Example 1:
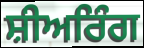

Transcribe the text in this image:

ਸ਼ੀਅਰਿੰਗ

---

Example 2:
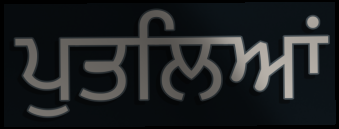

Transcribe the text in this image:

ਪੁਤਲਿਆਂ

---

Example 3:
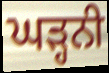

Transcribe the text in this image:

ਘੜ੍ਹਨੀ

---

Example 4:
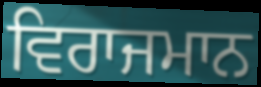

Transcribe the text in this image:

ਵਿਰਾਜਮਾਨ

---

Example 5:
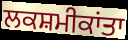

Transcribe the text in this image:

ਲਕਸ਼ਮੀਕਾਂਤਾ